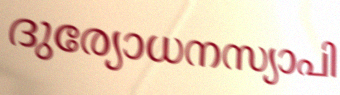
ദുര്യോധനസ്യാപി